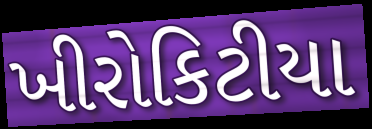
ખીરોકિટીયા